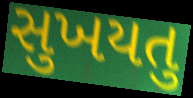
સુખયતુ